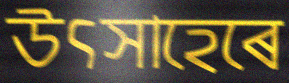
উৎসাহেৰে